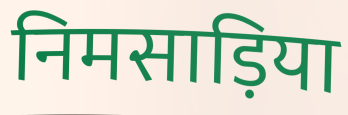
निमसाड़िया